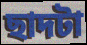
ছাদটা